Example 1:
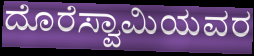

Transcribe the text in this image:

ದೊರೆಸ್ವಾಮಿಯವರ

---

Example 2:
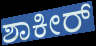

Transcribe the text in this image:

ಶಾಕೀರ್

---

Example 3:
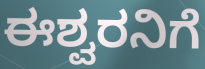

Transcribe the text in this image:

ಈಶ್ವರನಿಗೆ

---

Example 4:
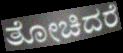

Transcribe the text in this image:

ತೋಚಿದರೆ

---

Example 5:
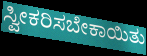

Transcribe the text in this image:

ಸ್ವೀಕರಿಸಬೇಕಾಯಿತು